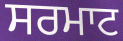
ਸਰਮਾਟ